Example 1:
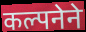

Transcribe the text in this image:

कल्पनेने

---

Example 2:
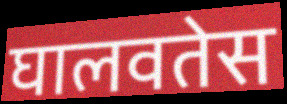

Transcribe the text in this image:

घालवतेस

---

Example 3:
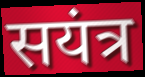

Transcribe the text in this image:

सयंत्र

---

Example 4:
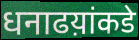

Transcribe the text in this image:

धनाढय़ांकडे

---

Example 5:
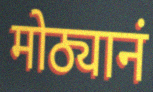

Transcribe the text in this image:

मोठ्यानं